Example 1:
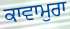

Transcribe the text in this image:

ਕਾਵਾਮੁਰਾ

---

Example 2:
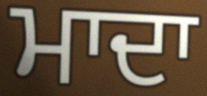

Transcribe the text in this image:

ਮਾਦਾ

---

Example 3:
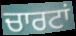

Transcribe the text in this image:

ਚਾਰਟਾਂ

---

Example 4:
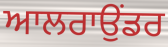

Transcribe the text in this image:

ਆਲਰਾਉਂਡਰ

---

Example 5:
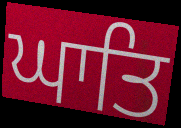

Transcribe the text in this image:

ਘਾਤਿ